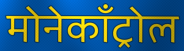
मोनेकॉंट्रोल